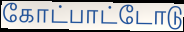
கோட்பாட்டோடு